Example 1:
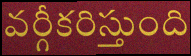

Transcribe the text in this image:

వర్గీకరిస్తుంది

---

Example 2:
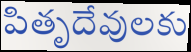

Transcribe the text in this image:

పితృదేవులకు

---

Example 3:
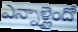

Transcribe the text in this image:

ఎన్నాళ్లైందో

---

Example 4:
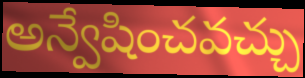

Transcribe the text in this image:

అన్వేషించవచ్చు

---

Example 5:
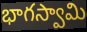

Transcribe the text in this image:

భాగస్వామి